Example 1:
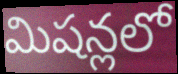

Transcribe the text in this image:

మిషన్లలో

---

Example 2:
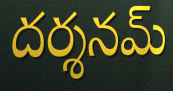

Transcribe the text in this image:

దర్శనమ్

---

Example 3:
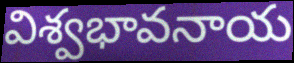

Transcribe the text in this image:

విశ్వభావనాయ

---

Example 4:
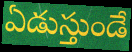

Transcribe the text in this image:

ఏడుస్తుండే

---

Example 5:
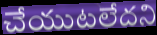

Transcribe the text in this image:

చేయుటలేదని